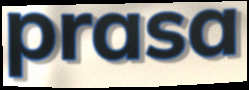
prasa